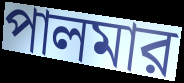
পালমার